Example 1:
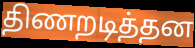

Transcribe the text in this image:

திணறடித்தன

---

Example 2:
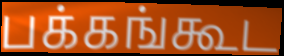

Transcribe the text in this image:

பக்கங்கூட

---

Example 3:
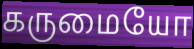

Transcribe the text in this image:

கருமையோ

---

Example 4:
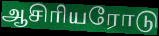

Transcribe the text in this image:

ஆசிரியரோடு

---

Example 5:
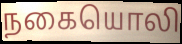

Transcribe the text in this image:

நகையொலி